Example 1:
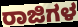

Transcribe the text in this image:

ರಾಜಿಗಳ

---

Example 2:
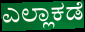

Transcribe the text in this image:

ಎಲ್ಲಾಕಡೆ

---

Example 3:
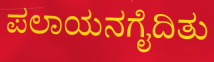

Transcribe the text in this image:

ಪಲಾಯನಗೈದಿತು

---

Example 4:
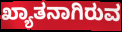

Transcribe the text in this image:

ಖ್ಯಾತನಾಗಿರುವ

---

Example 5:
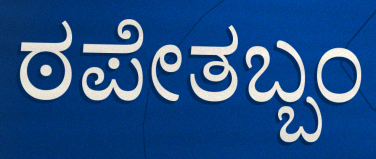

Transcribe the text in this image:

ಠಪೇತಬ್ಬಂ